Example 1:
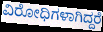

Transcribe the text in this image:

ವಿರೋಧಿಗಳಾಗಿದ್ದರೆ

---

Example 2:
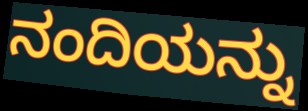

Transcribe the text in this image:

ನಂದಿಯನ್ನು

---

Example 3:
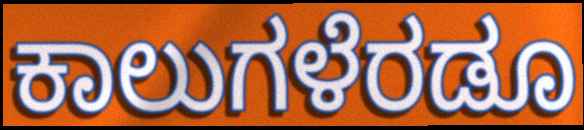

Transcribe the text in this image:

ಕಾಲುಗಳೆರಡೂ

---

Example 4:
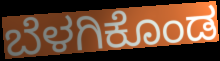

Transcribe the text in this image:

ಬೆಳಗಿಕೊಂಡ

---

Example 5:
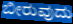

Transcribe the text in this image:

ಬೀರುವುದು